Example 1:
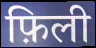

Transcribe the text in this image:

फ़िली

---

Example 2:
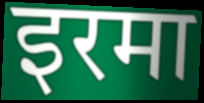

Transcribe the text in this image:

इरमा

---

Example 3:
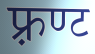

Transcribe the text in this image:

फ़्रण्ट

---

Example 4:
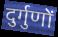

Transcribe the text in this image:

दुर्गुणों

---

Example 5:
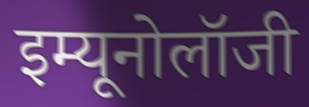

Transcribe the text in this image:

इम्यूनोलॉजी